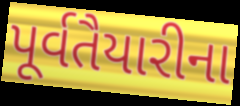
પૂર્વતૈયારીના